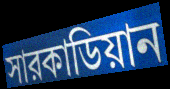
সারকাডিয়ান